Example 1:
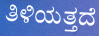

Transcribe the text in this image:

ತಿಳಿಯತ್ತದೆ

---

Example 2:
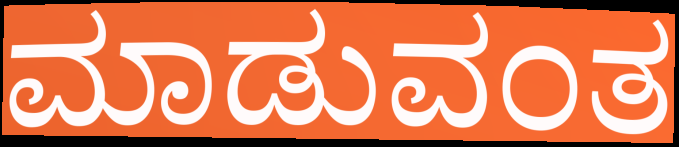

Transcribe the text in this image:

ಮಾಡುವಂತ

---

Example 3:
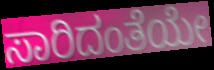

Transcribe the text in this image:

ಸಾರಿದಂತೆಯೇ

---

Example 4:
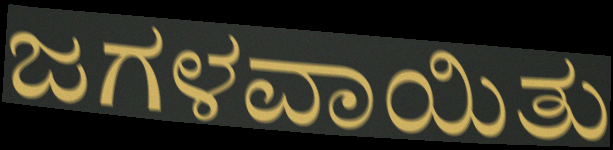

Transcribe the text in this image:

ಜಗಳವಾಯಿತು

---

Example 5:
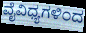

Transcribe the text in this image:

ವೈವಿಧ್ಯಗಳಿಂದ